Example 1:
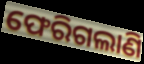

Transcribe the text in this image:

ଫେରିଗଲାଣି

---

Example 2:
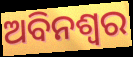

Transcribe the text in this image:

ଅବିନଶ୍ଵର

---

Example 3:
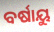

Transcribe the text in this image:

ବର୍ଷାୟୁ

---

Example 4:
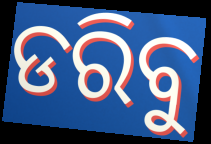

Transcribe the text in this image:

ଡରିବୁ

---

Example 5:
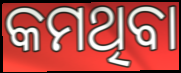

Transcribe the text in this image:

କମଥିବା